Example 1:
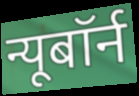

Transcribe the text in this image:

न्यूबॉर्न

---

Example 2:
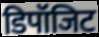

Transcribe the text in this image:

डिपॉजिट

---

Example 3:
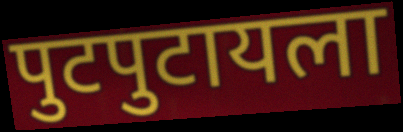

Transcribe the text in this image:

पुटपुटायला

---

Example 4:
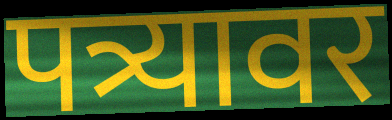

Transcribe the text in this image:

पत्र्यावर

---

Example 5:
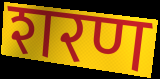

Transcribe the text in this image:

शरण